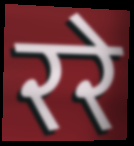
ररे